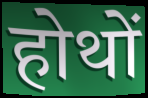
होथों